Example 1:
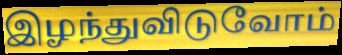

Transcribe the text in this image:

இழந்துவிடுவோம்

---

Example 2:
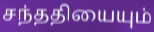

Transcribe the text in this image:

சந்ததியையும்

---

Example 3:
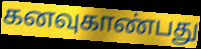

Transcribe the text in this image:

கனவுகாண்பது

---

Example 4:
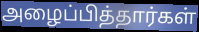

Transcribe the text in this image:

அழைப்பித்தார்கள்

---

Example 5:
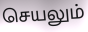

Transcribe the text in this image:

செயலும்